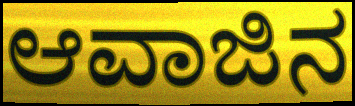
ಆವಾಜಿನ